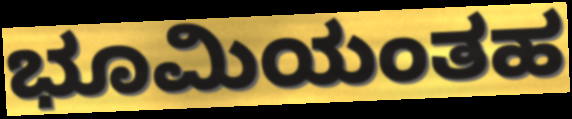
ಭೂಮಿಯಂತಹ